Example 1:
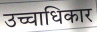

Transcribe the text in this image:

उच्चाधिकार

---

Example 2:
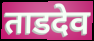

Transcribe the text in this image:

ताडदेव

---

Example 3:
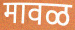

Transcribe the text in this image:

मावळ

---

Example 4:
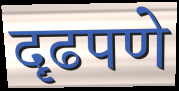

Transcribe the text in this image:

दृढपणे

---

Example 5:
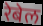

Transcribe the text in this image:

रेबेल